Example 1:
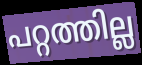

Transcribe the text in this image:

പറ്റത്തില്ല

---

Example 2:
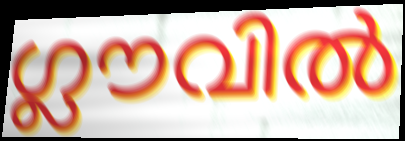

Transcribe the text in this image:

ഗ്ലൗവിൽ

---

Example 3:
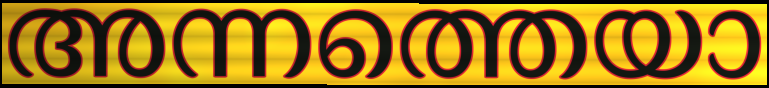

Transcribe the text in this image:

അന്നത്തെയാ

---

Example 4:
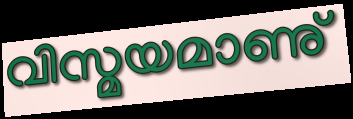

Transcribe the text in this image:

വിസ്മയമാണു്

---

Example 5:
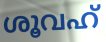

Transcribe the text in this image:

ശൂവഹ്